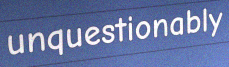
unquestionably